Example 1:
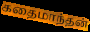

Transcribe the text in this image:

கதைமாந்தன்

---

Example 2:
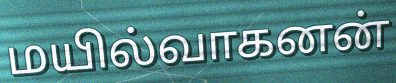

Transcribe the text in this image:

மயில்வாகனன்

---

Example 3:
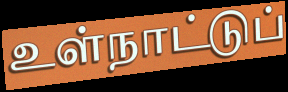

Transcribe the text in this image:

உள்நாட்டுப்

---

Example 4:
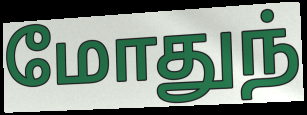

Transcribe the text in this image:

மோதுந்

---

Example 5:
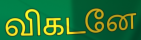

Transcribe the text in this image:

விகடனே